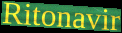
Ritonavir